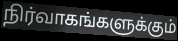
நிர்வாகங்களுக்கும்